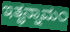
ಇತ್ಥನ್ನಾಮಂ